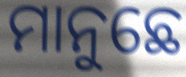
ମାନୁଛେ